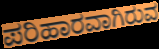
ಪರಿಹಾರವಾಗಿರುವ